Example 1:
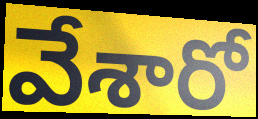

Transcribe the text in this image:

వేశారో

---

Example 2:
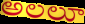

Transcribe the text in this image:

అలలూ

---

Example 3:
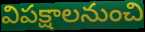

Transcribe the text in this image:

విపక్షాలనుంచి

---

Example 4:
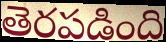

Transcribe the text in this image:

తెరపడింది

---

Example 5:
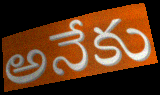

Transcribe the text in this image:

అనేకు